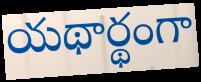
యథార్థంగా